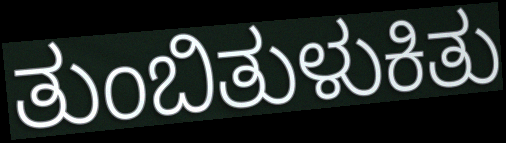
ತುಂಬಿತುಳುಕಿತು